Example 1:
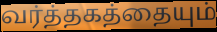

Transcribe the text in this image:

வர்த்தகத்தையும்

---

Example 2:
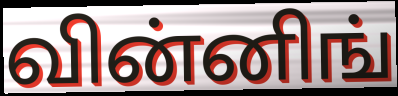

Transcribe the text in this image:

வின்னிங்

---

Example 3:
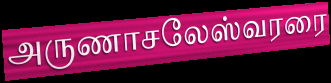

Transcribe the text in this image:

அருணாசலேஸ்வரரை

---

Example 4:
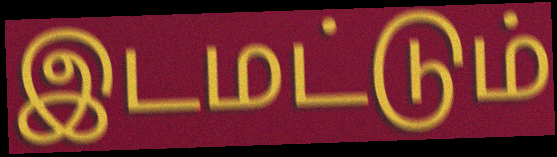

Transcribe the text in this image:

இடமட்டும்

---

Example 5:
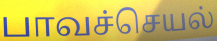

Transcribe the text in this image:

பாவச்செயல்